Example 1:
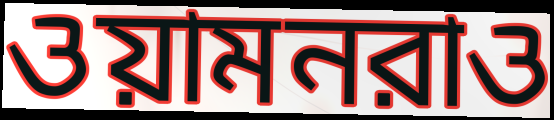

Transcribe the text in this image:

ওয়ামনরাও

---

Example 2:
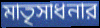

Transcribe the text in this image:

মাতৃসাধনার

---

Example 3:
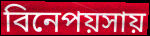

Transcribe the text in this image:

বিনেপয়সায়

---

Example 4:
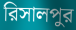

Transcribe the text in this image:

রিসালপুর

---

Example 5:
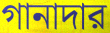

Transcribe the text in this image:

গানাদার